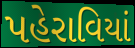
પહેરાવિયાં